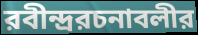
রবীন্দ্ররচনাবলীর